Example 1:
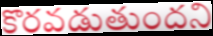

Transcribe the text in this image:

కొరవడుతుందని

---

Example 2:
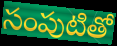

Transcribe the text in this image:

సంపుటితో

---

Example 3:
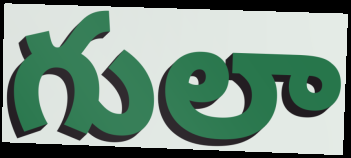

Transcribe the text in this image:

గులా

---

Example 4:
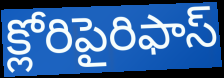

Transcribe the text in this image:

క్లోరిపైరిఫాస్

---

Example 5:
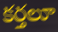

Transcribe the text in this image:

కర్తలూ